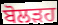
ਬੋਲੜਹ